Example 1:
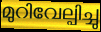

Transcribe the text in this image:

മുറിവേല്പിച്ചു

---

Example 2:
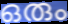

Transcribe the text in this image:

ഒരും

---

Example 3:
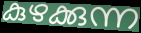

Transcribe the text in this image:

കുഴക്കുന്ന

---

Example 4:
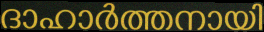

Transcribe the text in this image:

ദാഹാർത്തനായി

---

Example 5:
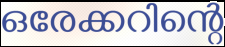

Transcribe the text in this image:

ഒരേക്കറിന്റെ